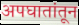
अपघातांतून